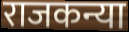
राजकन्या